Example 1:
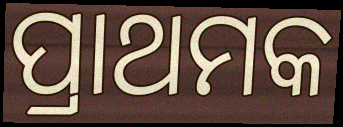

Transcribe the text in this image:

ପ୍ରାଥମକ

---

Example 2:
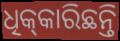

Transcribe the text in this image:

ଧିକ୍‌କାରିଛନ୍ତି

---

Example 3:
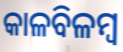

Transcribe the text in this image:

କାଳବିଳମ୍ବ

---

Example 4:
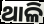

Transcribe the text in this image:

ଥାଳି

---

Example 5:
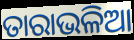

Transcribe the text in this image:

ତାରାଭଳିଆ